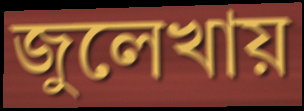
জুলেখায়